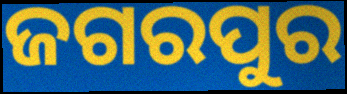
ଜଗରପୁର